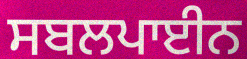
ਸਬਲਪਾਈਨ